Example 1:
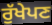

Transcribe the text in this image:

ਰੁੱਖੇਪਣ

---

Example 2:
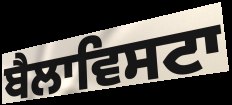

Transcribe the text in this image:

ਬੈਲਾਵਿਸਟਾ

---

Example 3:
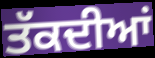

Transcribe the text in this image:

ਤੱਕਦੀਆਂ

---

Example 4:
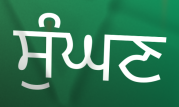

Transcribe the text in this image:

ਸੁੰਘਣ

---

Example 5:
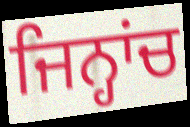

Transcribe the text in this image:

ਜਿਨ੍ਹਾਂਚ